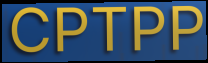
CPTPP